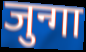
जुन्गा